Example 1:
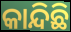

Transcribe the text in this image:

କାନ୍ଦିଛି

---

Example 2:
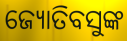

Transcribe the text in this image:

ଜ୍ୟୋତିବସୁଙ୍କ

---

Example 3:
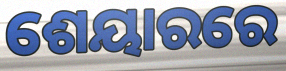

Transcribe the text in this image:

ଶେୟାରରେ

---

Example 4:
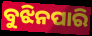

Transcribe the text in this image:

ବୁଝିନପାରି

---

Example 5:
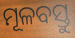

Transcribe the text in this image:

ମୂଳବସ୍ତୁ